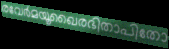
രവേർമയൂഖൈരഭിതാപിതോ